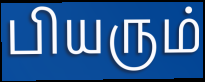
பியரும்